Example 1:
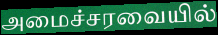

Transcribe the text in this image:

அமைச்சரவையில்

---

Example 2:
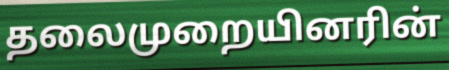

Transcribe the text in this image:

தலைமுறையினரின்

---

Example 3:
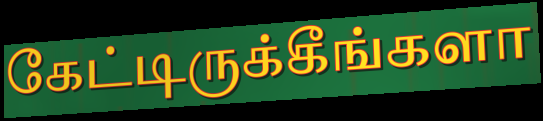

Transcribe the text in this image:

கேட்டிருக்கீங்களா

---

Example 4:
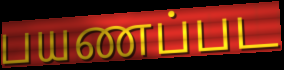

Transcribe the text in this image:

பயணப்பட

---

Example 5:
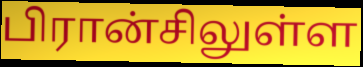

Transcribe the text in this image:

பிரான்சிலுள்ள